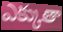
ఎక్కుతా